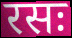
रसः